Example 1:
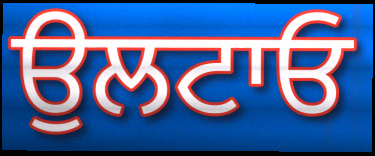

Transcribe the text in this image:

ਉਲਟਾਓ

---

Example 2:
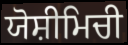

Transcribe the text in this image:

ਯੋਸ਼ੀਮਿਚੀ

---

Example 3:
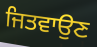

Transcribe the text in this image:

ਜਿਤਵਾਉਣ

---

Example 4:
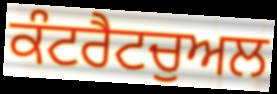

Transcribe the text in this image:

ਕੰਟਰੈਟਚੁਅਲ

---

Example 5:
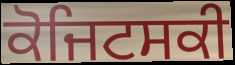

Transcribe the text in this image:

ਕੋਜਿਟਸਕੀ